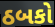
ઠબકો